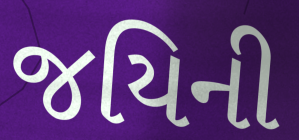
જયિની